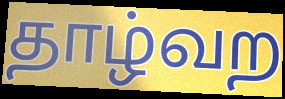
தாழ்வற